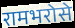
रामभरोसे